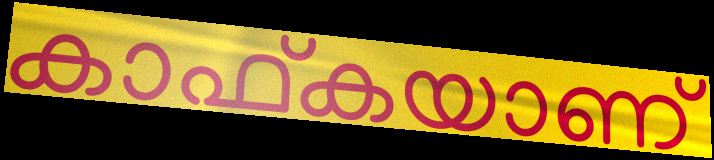
കാഫ്കയാണ്